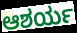
ಆಶರ್ಯ